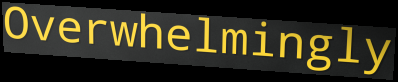
Overwhelmingly